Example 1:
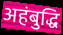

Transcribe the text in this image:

अहंबुद्धि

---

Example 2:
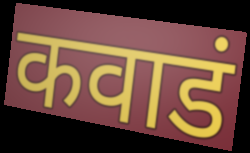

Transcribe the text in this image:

कवाडं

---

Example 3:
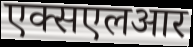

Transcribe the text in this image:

एक्सएलआर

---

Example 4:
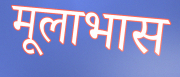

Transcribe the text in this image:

मूलाभास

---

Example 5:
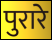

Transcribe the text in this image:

पुरारे